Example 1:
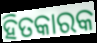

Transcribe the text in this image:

ହିତକାରକ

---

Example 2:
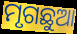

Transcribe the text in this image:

ମୃଗଛୁଆ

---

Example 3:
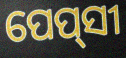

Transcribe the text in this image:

ପେପ୍‌ସୀ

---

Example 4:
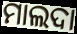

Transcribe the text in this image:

ମାଲଦା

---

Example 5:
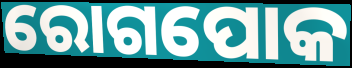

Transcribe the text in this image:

ରୋଗପୋକ